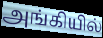
அங்கியில்